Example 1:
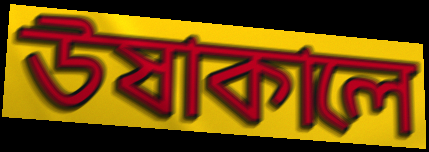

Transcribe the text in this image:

উষাকালে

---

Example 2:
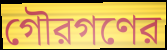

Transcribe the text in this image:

গৌরগণের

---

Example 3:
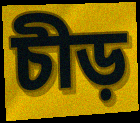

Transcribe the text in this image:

চীড়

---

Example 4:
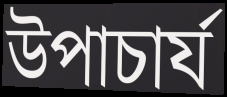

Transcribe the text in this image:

উপাচার্য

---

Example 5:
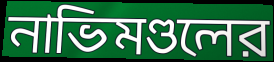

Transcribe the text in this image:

নাভিমণ্ডলের